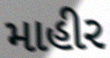
માહીર